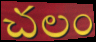
చలం